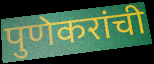
पुणेकरांची